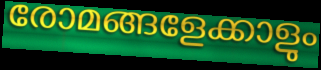
രോമങ്ങളേക്കാളും